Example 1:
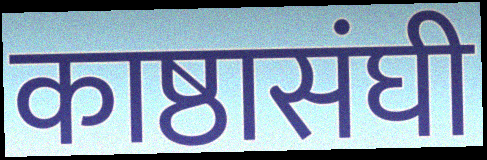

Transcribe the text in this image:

काष्ठासंघी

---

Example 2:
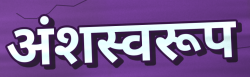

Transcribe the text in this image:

अंशस्वरूप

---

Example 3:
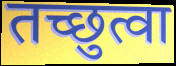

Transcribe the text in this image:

तच्छुत्वा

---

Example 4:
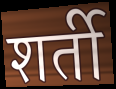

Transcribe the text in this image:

शर्ती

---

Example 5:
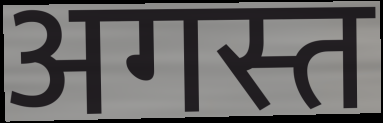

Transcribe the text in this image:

अगस्त